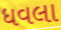
ધવલા